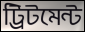
ট্রিটমেন্ট